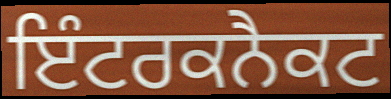
ਇੰਟਰਕਨੈਕਟ